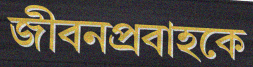
জীবনপ্রবাহকে